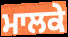
ਮਾਲਕੇ